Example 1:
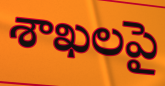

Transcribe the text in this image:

శాఖలపై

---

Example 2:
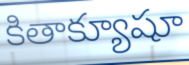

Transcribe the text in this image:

కితాక్యూషూ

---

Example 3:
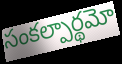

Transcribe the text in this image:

సంకల్పార్థమో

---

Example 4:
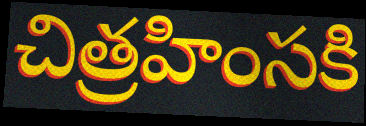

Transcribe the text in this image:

చిత్రహింసకి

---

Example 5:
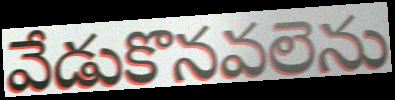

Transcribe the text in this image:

వేడుకొనవలెను